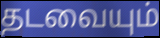
தடவையும்